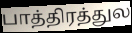
பாத்திரத்துல